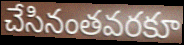
చేసినంతవరకూ